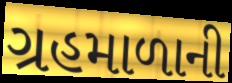
ગ્રહમાળાની